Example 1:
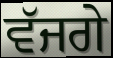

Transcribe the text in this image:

ਵੱਜਗੇ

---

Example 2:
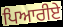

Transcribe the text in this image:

ਪਿਆਰੀਏ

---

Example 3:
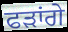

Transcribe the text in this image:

ਫੜਾਂਗੇ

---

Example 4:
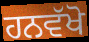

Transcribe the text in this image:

ਹਨਵੱਖੋ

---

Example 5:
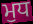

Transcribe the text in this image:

ਮੁਧ